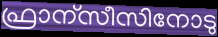
ഫ്രാന്സീസിനോടു